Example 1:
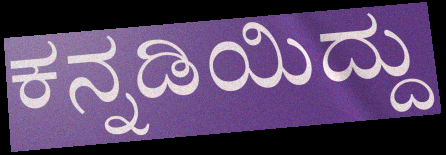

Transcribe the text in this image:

ಕನ್ನಡಿಯಿದ್ದು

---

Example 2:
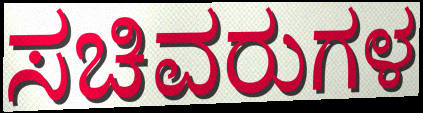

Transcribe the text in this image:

ಸಚಿವರುಗಳ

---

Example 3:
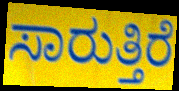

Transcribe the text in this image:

ಸಾರುತ್ತಿರೆ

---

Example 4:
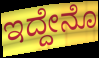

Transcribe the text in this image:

ಇದ್ದೇನೊ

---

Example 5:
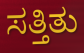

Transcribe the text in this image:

ಸತ್ತಿತು